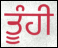
ਤੂੰਹੀ